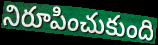
నిరూపించుకుంది